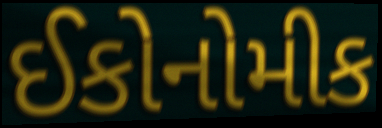
ઈકોનોમીક